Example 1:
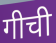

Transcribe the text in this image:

गीची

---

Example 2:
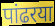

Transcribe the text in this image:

पांढरया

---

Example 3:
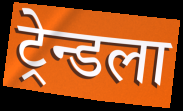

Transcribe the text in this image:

ट्रेन्डला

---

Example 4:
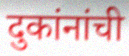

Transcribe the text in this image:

दुकांनांची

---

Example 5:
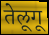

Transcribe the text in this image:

तेलूगू